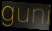
guni